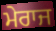
ਮੇਰਾਜ